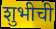
शुभीची